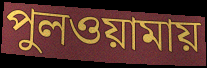
পুলওয়ামায়